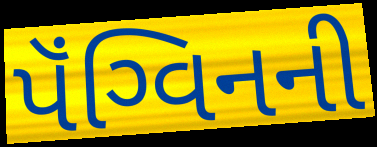
પૅંગ્વિનની